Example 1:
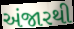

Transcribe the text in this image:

અંજારથી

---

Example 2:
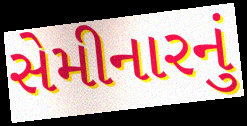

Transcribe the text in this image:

સેમીનારનું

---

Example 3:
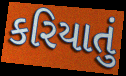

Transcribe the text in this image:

કરિયાતું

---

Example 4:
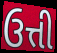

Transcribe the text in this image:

ઉત્તી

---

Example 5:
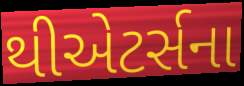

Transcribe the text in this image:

થીએટર્સના